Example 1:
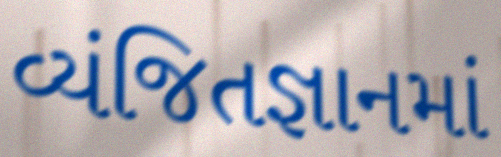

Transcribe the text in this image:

વ્યંજિતજ્ઞાનમાં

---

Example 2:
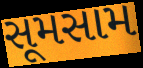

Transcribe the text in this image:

સૂમસામ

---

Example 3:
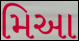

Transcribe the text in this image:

મિઆ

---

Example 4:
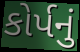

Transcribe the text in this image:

કોર્પનું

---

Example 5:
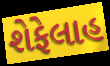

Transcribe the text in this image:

શેફેલાહ